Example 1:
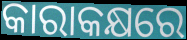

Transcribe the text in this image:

କାରାକକ୍ଷରେ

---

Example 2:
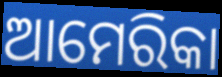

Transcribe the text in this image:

ଆମେରିକା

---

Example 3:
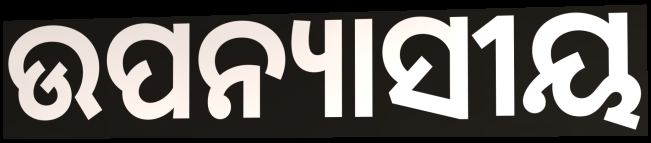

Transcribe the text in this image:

ଉପନ୍ୟାସୀୟ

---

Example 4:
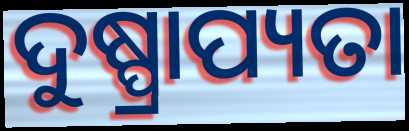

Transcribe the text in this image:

ଦୁଷ୍ପ୍ରାପ୍ୟତା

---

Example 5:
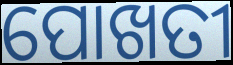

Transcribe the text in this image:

ପୋଖତୀ